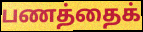
பணத்தைக்